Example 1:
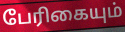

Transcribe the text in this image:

பேரிகையும்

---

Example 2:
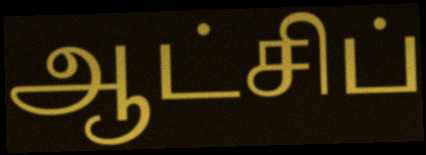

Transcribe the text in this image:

ஆட்சிப்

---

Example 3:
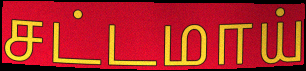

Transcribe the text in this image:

சட்டமாய்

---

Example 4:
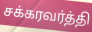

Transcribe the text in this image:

சக்கரவர்த்தி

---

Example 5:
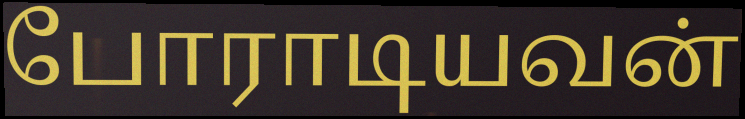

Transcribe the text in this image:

போராடியவன்